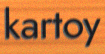
kartoy